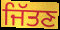
ਜਿੱਤਣ